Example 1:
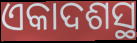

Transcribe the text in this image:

ଏକାଦଶସ୍ଥ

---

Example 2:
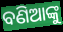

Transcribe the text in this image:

ବଣିଆଙ୍କୁ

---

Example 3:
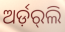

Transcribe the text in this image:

ଅର୍ଡ଼ର୍‌ଲି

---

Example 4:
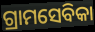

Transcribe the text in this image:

ଗ୍ରାମସେବିକା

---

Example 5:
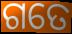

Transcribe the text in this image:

ଗତେ